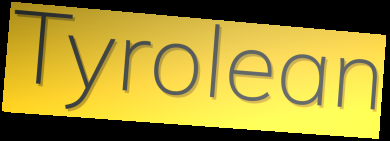
Tyrolean